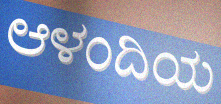
ಆಳಂದಿಯ